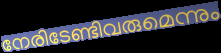
നേരിടേണ്ടിവരുമെന്നും